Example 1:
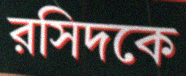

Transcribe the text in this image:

রসিদকে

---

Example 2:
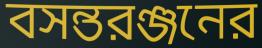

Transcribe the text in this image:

বসন্তরঞ্জনের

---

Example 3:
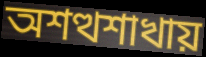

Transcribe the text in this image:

অশত্থশাখায়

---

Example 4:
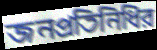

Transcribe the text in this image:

জনপ্রতিনিধির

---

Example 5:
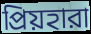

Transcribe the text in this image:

প্রিয়হারা